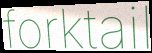
forktail